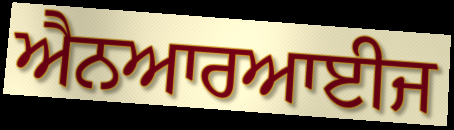
ਐਨਆਰਆਈਜ